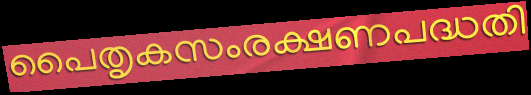
പൈതൃകസംരക്ഷണപദ്ധതി